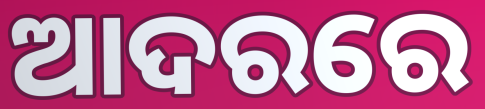
ଆଦରରେ